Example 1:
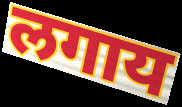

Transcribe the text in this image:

लगाय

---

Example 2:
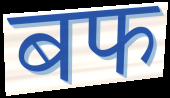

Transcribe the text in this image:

बफ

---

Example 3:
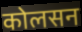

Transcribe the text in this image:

कोलसन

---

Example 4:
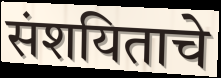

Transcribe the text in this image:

संशयिताचे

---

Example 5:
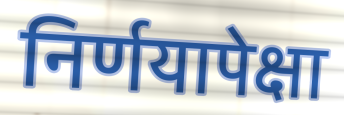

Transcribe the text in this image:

निर्णयापेक्षा